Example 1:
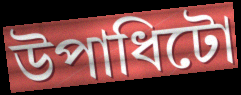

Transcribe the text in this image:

উপাধিটো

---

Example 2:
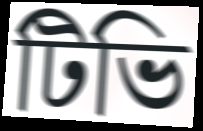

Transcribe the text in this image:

টিভি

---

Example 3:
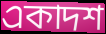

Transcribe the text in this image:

একাদশ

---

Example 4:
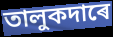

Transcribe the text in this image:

তালুকদাৰে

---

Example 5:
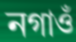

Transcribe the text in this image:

নগাওঁ